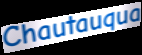
Chautauqua